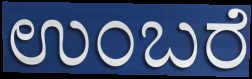
ಉಂಬರೆ